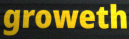
groweth